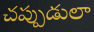
చప్పుడులా